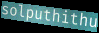
solputhithu